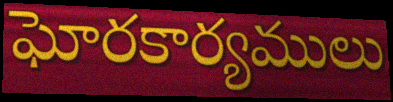
ఘోరకార్యములు